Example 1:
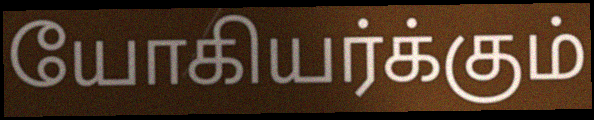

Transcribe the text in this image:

யோகியர்க்கும்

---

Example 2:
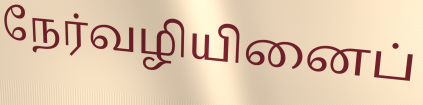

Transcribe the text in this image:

நேர்வழியினைப்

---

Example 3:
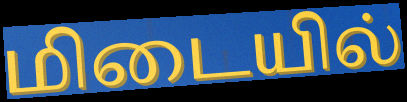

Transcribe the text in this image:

மிடையில்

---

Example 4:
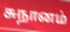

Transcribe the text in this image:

சுநானம்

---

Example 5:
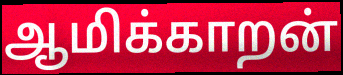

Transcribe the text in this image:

ஆமிக்காறன்